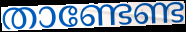
താണ്ടേണ്ട